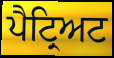
ਪੈਟ੍ਰਿਅਟ